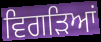
ਵਿਗੜਿਆਂ